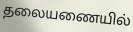
தலையணையில்